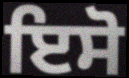
ਇਸੋ